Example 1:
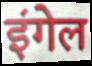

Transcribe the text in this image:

इंगेल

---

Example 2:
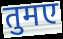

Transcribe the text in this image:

तुमए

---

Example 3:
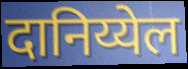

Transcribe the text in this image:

दानिय्येल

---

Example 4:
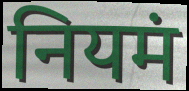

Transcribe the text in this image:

नियमं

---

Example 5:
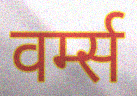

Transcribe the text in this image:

वर्म्स